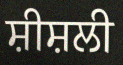
ਸ਼ੀਸ਼ਲੀ